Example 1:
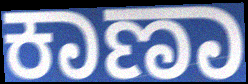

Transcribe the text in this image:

ಕಾಣಾ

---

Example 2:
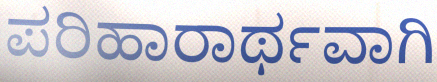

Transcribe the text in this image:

ಪರಿಹಾರಾರ್ಥವಾಗಿ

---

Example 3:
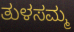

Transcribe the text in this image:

ತುಳಸಮ್ಮ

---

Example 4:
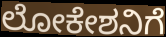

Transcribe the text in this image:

ಲೋಕೇಶನಿಗೆ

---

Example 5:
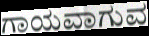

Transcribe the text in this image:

ಗಾಯವಾಗುವ